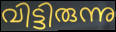
വിട്ടിരുന്നു